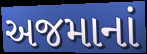
અજમાનાં